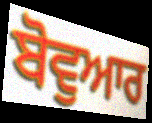
ਬੋਵੁਆਰ